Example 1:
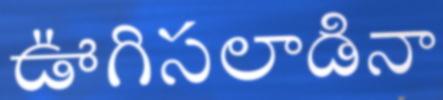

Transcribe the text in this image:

ఊగిసలాడినా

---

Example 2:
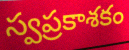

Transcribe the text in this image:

స్వప్రకాశకం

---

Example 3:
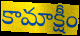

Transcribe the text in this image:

కామాక్షీం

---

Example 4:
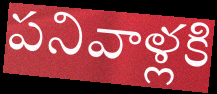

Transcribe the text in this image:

పనివాళ్లకి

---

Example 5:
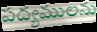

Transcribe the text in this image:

పద్యములను